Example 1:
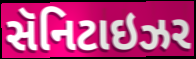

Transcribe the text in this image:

સૅનિટાઇઝર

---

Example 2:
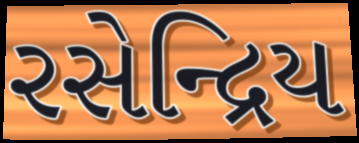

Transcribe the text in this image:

રસેન્દ્રિય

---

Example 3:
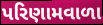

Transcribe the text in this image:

પરિણામવાળા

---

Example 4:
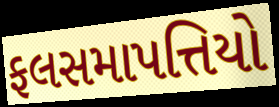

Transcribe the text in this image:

ફલસમાપત્તિયો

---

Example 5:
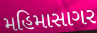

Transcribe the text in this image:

મહિમાસાગર